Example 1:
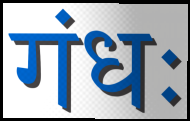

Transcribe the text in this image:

गंधः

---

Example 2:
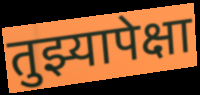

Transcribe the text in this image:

तुझ्यापेक्षा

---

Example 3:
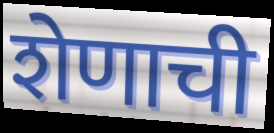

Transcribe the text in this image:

शेणाची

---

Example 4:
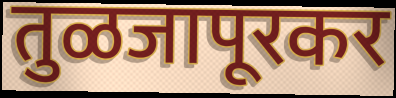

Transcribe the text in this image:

तुळजापूरकर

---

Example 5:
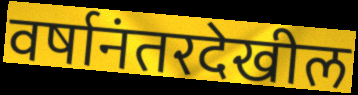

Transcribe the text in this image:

वर्षानंतरदेखील